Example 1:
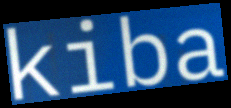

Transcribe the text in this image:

kiba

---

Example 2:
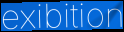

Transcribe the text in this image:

exibition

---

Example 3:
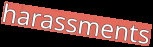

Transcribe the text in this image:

harassments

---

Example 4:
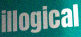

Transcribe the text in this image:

illogical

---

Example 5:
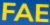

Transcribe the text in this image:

FAE